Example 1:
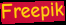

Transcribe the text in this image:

Freepik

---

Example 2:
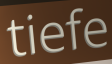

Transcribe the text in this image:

tiefe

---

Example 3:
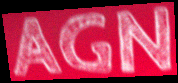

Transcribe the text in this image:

AGN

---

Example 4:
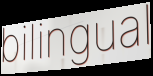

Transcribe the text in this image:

bilingual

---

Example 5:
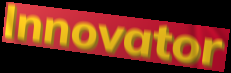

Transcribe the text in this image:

Innovator